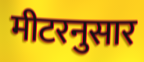
मीटरनुसार